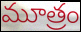
మూత్రం